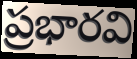
ప్రభారవి